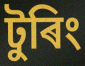
টুৰিং